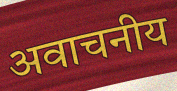
अवाचनीय